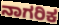
ನಾಗರಿಕ